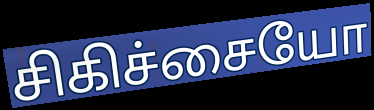
சிகிச்சையோ